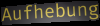
Aufhebung